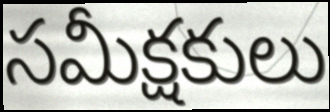
సమీక్షకులు